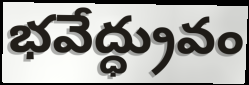
భవేద్ధ్రువం